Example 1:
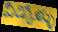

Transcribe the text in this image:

వీడ్కోళ్ళు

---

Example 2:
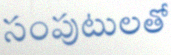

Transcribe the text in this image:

సంపుటులతో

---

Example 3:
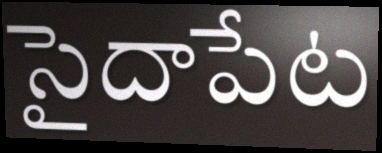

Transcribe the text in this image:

సైదాపేట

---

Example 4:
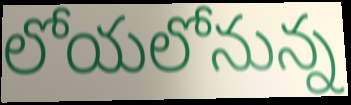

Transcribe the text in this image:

లోయలోనున్న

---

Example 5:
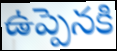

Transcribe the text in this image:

ఉప్పెనకి